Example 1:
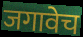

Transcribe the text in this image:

जगावेच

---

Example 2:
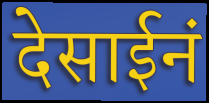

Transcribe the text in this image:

देसाईनं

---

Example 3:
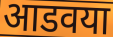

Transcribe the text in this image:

आडवया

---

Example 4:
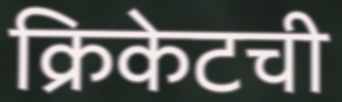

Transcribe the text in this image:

क्रिकेटची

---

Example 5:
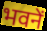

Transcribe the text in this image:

भवनें